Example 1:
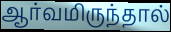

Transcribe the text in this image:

ஆர்வமிருந்தால்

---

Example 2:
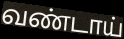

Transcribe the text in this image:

வண்டாய்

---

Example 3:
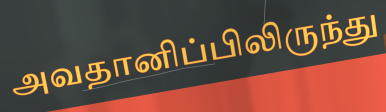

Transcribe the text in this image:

அவதானிப்பிலிருந்து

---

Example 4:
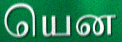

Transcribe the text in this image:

யென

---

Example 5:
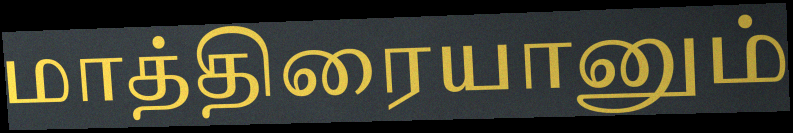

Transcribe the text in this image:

மாத்திரையானும்